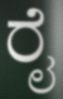
ರೈ